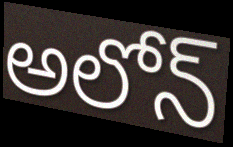
అలోన్